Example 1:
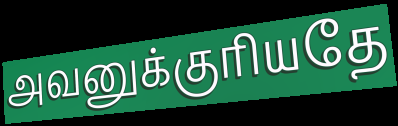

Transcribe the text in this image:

அவனுக்குரியதே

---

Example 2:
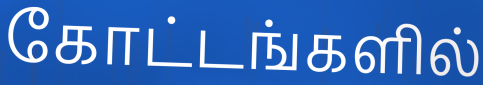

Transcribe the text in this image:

கோட்டங்களில்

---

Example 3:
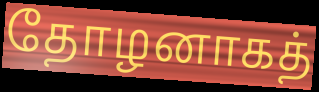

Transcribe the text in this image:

தோழனாகத்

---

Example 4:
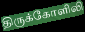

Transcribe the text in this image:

திருக்கோளிலி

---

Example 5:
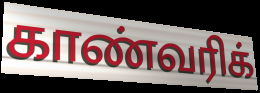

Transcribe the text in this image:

காண்வரிக்